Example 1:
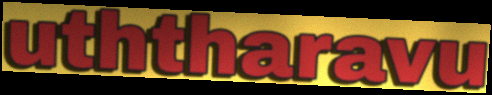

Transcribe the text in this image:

uththaravu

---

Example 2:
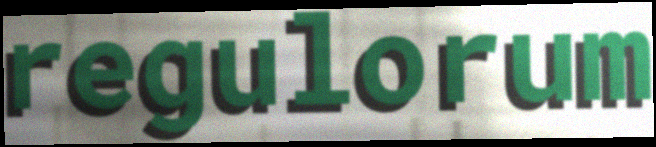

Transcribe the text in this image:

regulorum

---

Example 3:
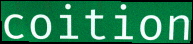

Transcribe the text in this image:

coition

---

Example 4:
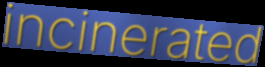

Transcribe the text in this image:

incinerated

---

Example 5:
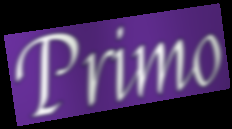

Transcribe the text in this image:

Primo